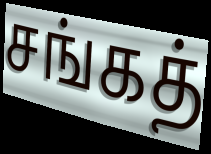
சங்கத்